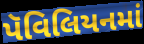
પૅવિલિયનમાં